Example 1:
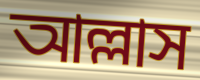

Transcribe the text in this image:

আল্লাস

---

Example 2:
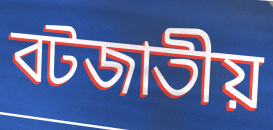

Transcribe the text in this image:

বটজাতীয়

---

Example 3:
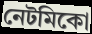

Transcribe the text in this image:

নেটমিকো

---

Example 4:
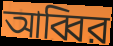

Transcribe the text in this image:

আব্বির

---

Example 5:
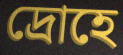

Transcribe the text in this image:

দ্রোহে